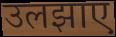
उलझाए